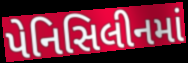
પેનિસિલીનમાં